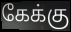
கேக்கு